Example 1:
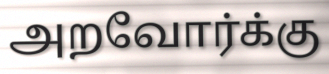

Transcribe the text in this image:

அறவோர்க்கு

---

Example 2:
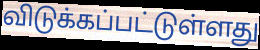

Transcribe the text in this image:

விடுக்கப்பட்டுள்ளது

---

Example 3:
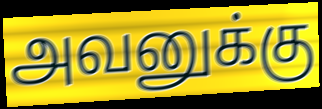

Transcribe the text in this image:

அவனுக்கு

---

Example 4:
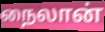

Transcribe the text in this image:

நைலான்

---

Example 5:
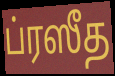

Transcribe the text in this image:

ப்ரஸீத